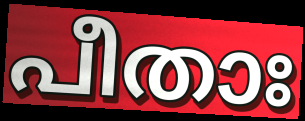
പീതാഃ